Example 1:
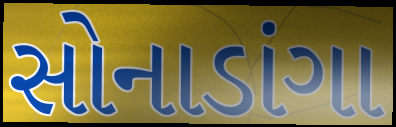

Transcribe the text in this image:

સોનાડાંગા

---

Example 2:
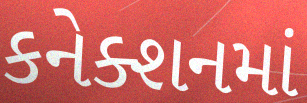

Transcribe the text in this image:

કનેક્શનમાં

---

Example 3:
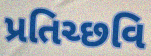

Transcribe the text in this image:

પ્રતિચ્છવિ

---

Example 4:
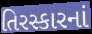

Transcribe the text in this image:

તિરસ્કારનાં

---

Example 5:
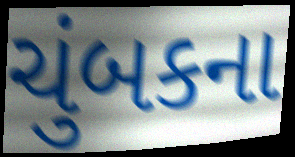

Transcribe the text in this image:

ચુંબકના